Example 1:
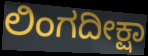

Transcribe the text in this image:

ಲಿಂಗದೀಕ್ಷಾ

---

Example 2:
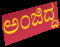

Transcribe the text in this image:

ಅಂಜಿದ್ದ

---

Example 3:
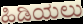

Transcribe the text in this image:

ಹಿಡಿಯಲು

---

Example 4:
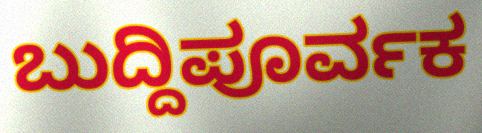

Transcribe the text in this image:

ಬುದ್ದಿಪೂರ್ವಕ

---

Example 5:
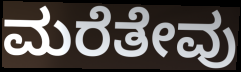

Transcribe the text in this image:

ಮರೆತೇವು